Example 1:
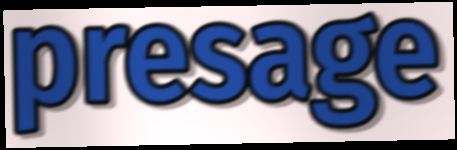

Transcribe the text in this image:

presage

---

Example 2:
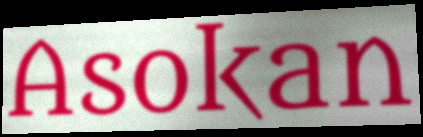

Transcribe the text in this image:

Asokan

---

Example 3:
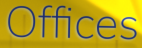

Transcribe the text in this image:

Offices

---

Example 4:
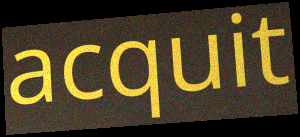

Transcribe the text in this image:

acquit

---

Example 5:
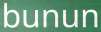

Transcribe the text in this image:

bunun